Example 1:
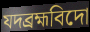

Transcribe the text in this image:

যদব্রহ্মবিদো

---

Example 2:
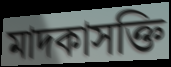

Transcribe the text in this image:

মাদকাসক্তি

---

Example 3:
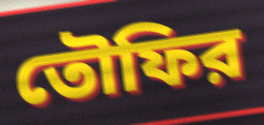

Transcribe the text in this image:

তৌফির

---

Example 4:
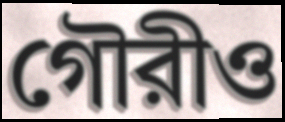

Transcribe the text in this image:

গৌরীও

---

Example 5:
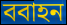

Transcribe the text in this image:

ববাহন